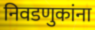
निवडणुकांना